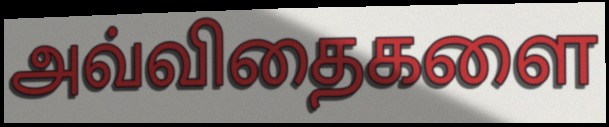
அவ்விதைகளை